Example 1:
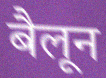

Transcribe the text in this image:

बैलून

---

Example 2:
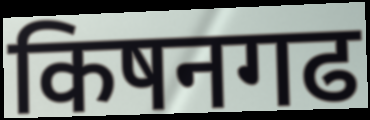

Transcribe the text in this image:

किषनगढ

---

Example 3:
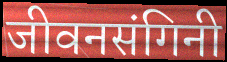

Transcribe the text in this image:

जीवनसंगिनी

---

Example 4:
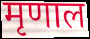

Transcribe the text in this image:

मृणाल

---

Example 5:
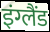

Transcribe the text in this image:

इंग्‍लैंड